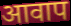
आवाप